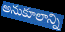
అనుకూలాన్ని